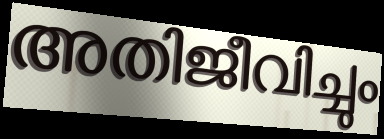
അതിജീവിച്ചും